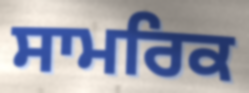
ਸਾਮਰਿਕ